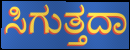
ಸಿಗುತ್ತದಾ